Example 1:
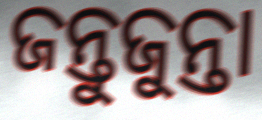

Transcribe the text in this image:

ଜନ୍ତୁଜୁନ୍ତା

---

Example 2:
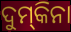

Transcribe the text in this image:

ଦୁମ୍‌କିନା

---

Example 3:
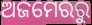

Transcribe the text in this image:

ଅଜମେରରୁ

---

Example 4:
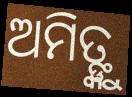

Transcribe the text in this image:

ଅମିତ୍ଙ୍କୁ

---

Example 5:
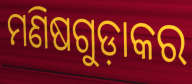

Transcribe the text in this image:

ମଣିଷଗୁଡ଼ାକର